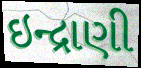
ઇન્દ્રાણી